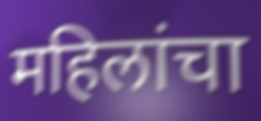
महिलांचा